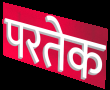
परतेक